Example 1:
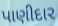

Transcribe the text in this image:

પાણીદાર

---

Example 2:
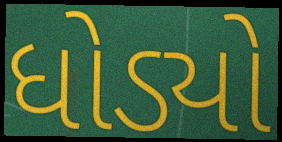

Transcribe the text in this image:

ધોડ્યો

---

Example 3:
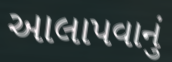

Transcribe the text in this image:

આલાપવાનું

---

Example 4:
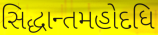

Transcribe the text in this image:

સિદ્ધાન્તમહોદધિ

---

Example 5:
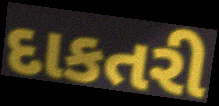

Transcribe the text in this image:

દાકતરી